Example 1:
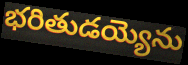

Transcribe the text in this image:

భరితుడయ్యెను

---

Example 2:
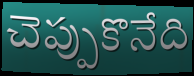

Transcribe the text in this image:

చెప్పుకొనేది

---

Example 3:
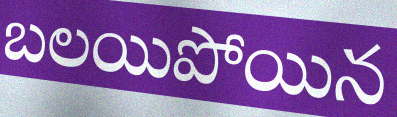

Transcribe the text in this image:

బలయిపోయిన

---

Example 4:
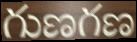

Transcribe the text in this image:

గుణగణ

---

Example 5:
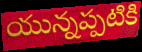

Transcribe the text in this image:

యున్నప్పటికి